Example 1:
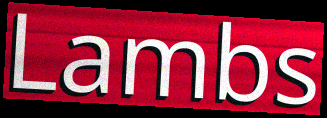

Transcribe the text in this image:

Lambs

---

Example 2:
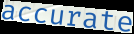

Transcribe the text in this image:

accurate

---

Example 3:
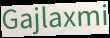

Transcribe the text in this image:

Gajlaxmi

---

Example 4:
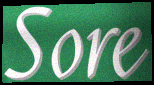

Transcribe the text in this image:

Sore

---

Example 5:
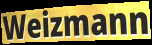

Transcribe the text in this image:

Weizmann